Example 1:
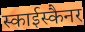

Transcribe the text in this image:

स्काईस्कैनर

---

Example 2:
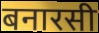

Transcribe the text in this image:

बनारसी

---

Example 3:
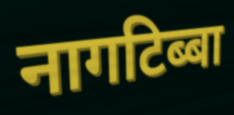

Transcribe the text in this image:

नागटिब्बा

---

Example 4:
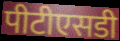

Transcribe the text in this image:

पीटीएसडी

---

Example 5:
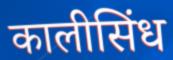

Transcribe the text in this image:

कालीसिंध